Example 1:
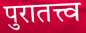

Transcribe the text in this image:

पुरातत्त्व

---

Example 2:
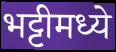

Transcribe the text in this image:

भट्टीमध्ये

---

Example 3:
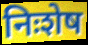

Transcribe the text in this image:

निःशेष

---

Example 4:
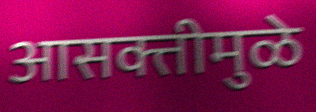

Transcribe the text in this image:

आसक्तीमुळे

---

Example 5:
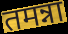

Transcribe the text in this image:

तमन्ना